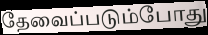
தேவைப்படும்போது